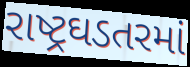
રાષ્ટ્રઘડતરમાં